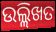
ଉଲ୍ଲିଖତ